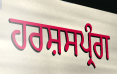
ਹਰਸ਼ਸਪ੍ਰੰਗ